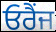
ਓਰੈਂਜ